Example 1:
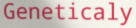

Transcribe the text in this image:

Geneticaly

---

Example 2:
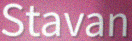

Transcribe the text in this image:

Stavan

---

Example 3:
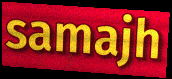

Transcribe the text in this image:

samajh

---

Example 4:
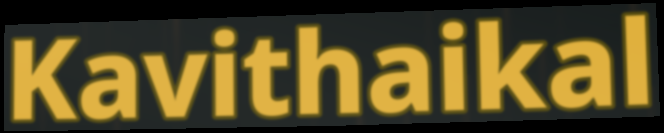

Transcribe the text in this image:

Kavithaikal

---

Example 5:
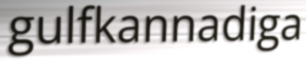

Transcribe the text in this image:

gulfkannadiga